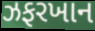
ઝફરખાન